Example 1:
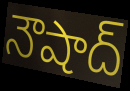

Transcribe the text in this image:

నౌషాద్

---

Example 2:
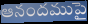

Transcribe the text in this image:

ఆనందముపై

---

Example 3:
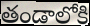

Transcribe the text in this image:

తండాలోకి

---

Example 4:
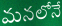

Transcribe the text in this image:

మనలోనే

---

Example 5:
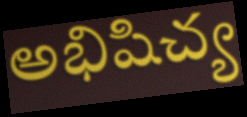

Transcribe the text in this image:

అభిషిచ్య